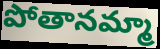
పోతానమ్మా